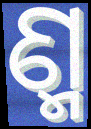
ଣ୍ମ